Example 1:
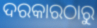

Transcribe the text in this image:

ଦରକାରଠାରୁ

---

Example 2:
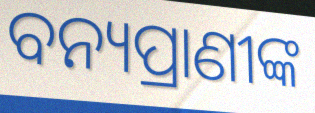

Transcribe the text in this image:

ବନ୍ୟପ୍ରାଣୀଙ୍କ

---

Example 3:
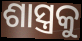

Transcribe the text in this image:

ଶାସ୍ତ୍ରକୁ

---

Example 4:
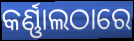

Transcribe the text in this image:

କର୍ଣ୍ଣାଲଠାରେ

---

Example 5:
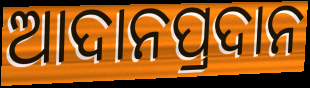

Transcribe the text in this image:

ଆଦାନପ୍ରଦାନ